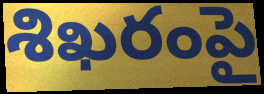
శిఖరంపై